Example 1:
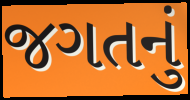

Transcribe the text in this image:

જગતનું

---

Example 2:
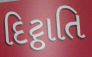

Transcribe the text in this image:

દિટ્ઠાતિ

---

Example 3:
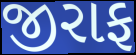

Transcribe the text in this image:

જીરાફ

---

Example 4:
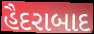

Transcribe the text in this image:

હૈદરાબાદ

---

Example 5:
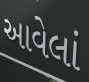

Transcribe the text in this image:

આવેલાં